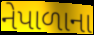
નેપાળાના